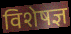
विशेषज्ञ